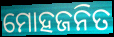
ମୋହଜନିତ